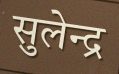
सुलेन्द्र